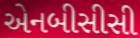
એનબીસીસી